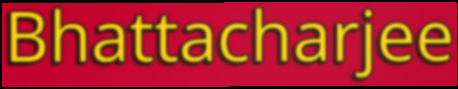
Bhattacharjee